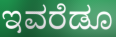
ಇವರೆಡೂ